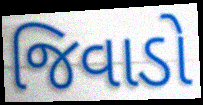
જિવાડો